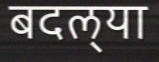
बदल्या